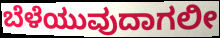
ಬೆಳೆಯುವುದಾಗಲೀ